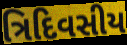
ત્રિદિવસીય